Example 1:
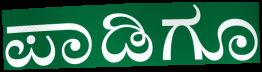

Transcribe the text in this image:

ಪಾಡಿಗೂ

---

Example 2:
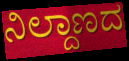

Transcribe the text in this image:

ನಿಲ್ದಾಣದ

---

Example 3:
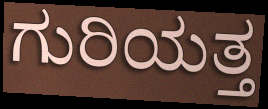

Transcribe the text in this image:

ಗುರಿಯತ್ತ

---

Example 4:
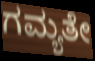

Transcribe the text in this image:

ಗಮ್ಯತೇ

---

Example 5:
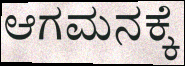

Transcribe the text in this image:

ಆಗಮನಕ್ಕೆ